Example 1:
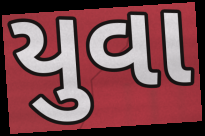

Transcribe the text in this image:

યુવા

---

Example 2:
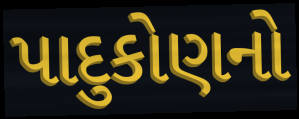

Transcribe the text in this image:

પાદુકોણનો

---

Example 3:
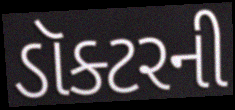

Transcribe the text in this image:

ડૉક્ટરની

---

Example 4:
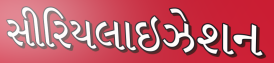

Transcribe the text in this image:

સીરિયલાઇઝેશન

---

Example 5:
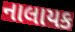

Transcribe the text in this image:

નાલાયક